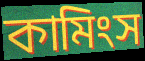
কামিংস